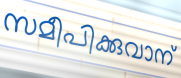
സമീപിക്കുവാന്